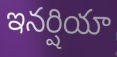
ఇనర్షియా